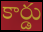
కార్డు